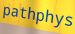
pathphys